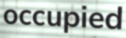
occupied